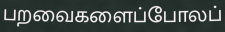
பறவைகளைப்போலப்